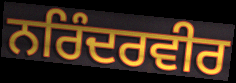
ਨਰਿੰਦਰਵੀਰ